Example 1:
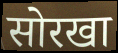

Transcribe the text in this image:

सोरखा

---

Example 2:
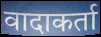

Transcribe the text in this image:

वादाकर्ता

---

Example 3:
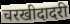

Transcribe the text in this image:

चरखीदादरी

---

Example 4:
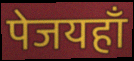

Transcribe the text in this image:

पेजयहाँ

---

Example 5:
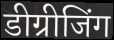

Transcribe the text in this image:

डीग्रीजिंग